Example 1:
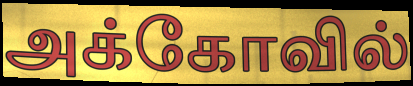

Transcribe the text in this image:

அக்கோவில்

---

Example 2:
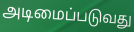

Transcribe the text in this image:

அடிமைப்படுவது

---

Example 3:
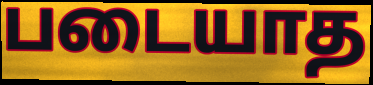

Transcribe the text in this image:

படையாத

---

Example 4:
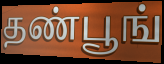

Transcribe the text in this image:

தண்பூங்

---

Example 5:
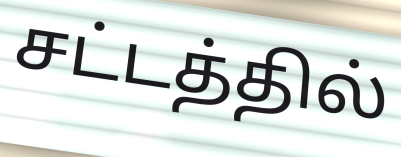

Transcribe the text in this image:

சட்டத்தில்